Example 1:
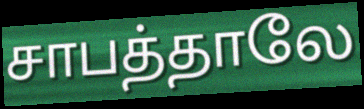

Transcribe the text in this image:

சாபத்தாலே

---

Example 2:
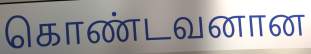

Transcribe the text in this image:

கொண்டவனான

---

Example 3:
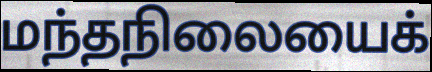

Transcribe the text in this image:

மந்தநிலையைக்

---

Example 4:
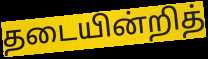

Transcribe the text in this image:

தடையின்றித்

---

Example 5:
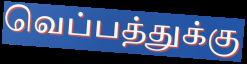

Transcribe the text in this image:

வெப்பத்துக்கு